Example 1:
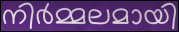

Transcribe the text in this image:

നിർമ്മലമായി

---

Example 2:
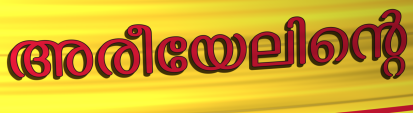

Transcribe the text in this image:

അരീയേലിന്റെ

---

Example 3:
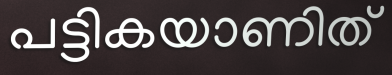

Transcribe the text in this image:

പട്ടികയാണിത്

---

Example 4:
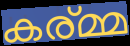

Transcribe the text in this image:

കര്മ്മ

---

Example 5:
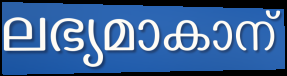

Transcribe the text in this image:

ലഭ്യമാകാന്